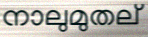
നാലുമുതല്